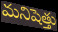
మనిషెత్తు